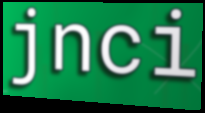
jnci